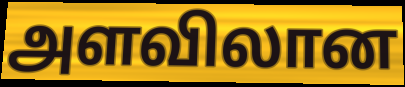
அளவிலான